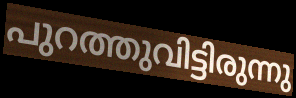
പുറത്തുവിട്ടിരുന്നു